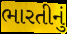
ભારતીનું